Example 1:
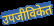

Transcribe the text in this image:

उपजीविकेत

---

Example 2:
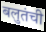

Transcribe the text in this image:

बलुतंची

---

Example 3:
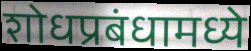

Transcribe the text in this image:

शोधप्रबंधामध्ये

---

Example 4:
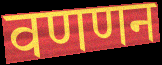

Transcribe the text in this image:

वणणन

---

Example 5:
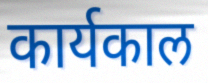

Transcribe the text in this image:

कार्यकाल